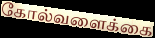
கோல்வளைக்கை